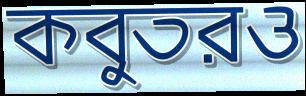
কবুতরও